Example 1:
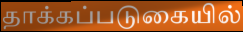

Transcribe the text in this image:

தாக்கப்படுகையில்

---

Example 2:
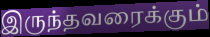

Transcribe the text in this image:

இருந்தவரைக்கும்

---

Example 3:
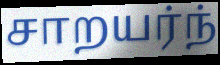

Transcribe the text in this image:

சாறயர்ந்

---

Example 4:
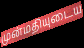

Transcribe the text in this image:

முன்மதியுடைய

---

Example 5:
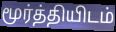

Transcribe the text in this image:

மூர்த்தியிடம்